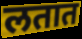
लतात